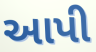
આપી